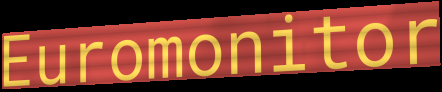
Euromonitor